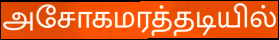
அசோகமரத்தடியில்